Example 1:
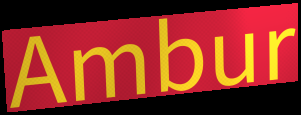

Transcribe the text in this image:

Ambur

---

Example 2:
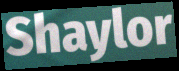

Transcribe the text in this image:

Shaylor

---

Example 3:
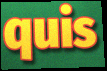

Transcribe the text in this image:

quis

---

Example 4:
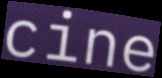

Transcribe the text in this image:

cine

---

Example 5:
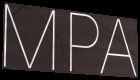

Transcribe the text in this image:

MPA